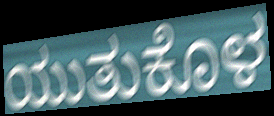
ಯುತುಕೊಳ